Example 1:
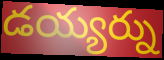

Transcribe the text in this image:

డయ్యర్ను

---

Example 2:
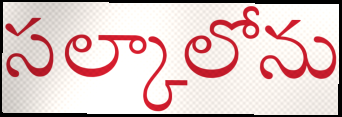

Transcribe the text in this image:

సల్కాలోను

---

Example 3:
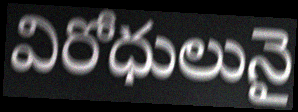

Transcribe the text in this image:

విరోధులునై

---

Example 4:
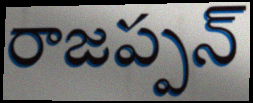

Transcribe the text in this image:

రాజప్పన్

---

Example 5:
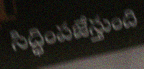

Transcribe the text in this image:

సిద్ధింపజేస్తుంది